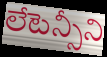
లేటెన్సీని